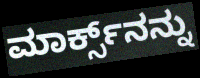
ಮಾರ್ಕ್ಸ್‌ನನ್ನು